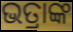
ଭତ୍ରାଙ୍କ